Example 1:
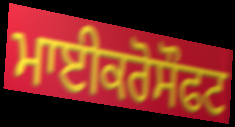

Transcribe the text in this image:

ਮਾਈਕਰੋਸੌਫਟ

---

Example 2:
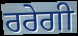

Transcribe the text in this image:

ਰਰੇਗੀ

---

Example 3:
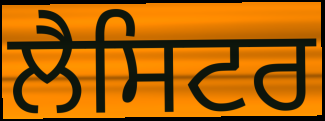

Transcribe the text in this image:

ਲੈਸਿਟਰ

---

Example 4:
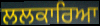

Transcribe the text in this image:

ਲਲਕਾਰਿਆ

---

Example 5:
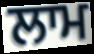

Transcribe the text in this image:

ਲਾਮ